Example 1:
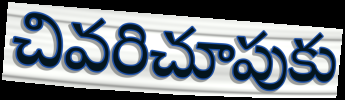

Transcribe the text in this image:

చివరిచూపుకు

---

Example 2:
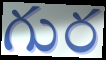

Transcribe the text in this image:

గుర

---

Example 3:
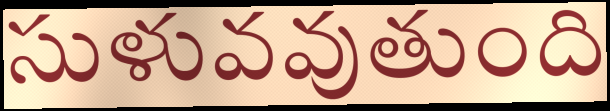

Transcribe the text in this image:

సుళువవుతుంది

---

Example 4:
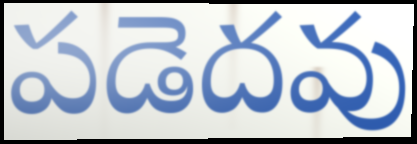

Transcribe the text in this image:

పడెదవు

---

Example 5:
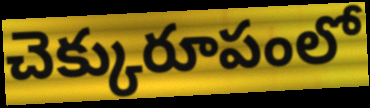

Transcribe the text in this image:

చెక్కురూపంలో